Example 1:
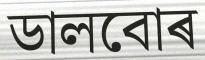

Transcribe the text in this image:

ডালবোৰ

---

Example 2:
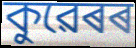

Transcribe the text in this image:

কুৱেৰৰ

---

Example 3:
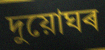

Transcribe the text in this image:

দুয়োঘৰ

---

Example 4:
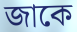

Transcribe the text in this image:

জাকে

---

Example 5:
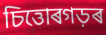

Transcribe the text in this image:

চিত্তোৰগড়ৰ